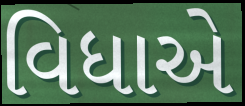
વિધાએ